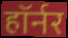
हॉर्नर